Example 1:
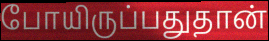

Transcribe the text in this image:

போயிருப்பதுதான்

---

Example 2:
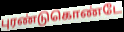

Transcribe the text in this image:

புரண்டுகொண்டே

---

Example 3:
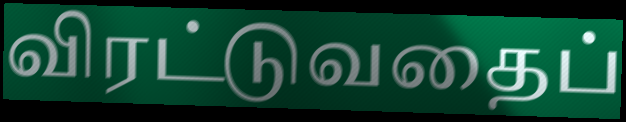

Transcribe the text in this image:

விரட்டுவதைப்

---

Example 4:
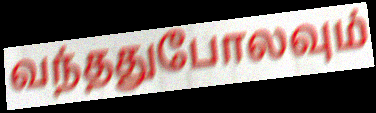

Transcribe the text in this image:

வந்ததுபோலவும்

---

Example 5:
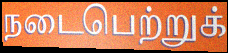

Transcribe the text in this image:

நடைபெற்றுக்